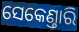
ସେକେଣ୍ତାରି